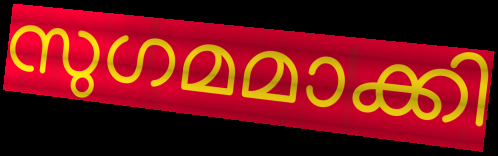
സുഗമമാക്കി